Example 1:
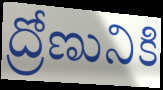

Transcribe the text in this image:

ద్రోణునికి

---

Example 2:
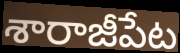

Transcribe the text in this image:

శారాజీపేట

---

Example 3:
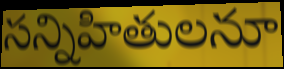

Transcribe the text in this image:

సన్నిహితులనూ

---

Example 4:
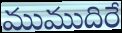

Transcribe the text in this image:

ముముదిరే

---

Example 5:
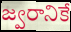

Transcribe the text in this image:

జ్వరానికే